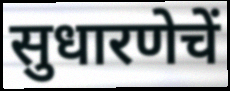
सुधारणेचें